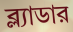
ব্ল্যাডার